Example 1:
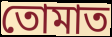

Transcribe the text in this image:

তোমাত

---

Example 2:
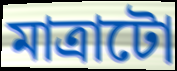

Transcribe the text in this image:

মাত্ৰাটো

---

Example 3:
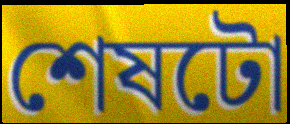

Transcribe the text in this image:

শেষটো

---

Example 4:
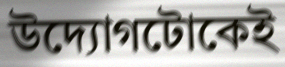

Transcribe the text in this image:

উদ্যোগটোকেই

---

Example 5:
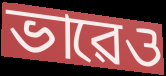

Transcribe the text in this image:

ভাৱেও